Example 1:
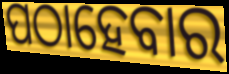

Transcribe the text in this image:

ପଠାହେବାର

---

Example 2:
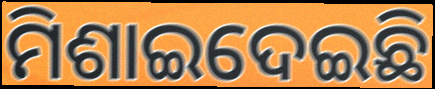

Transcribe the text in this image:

ମିଶାଇଦେଇଛି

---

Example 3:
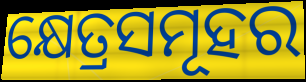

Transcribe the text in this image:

କ୍ଷେତ୍ରସମୂହର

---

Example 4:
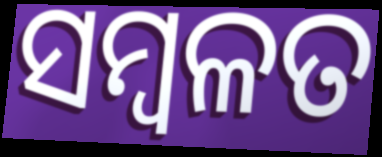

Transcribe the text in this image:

ସମ୍ବଳତ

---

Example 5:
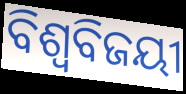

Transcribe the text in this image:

ବିଶ୍ଵବିଜୟୀ